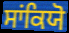
ਸਾਂਕਿਯੋ